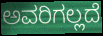
ಅವರಿಗಲ್ಲದೆ